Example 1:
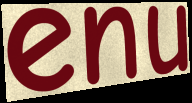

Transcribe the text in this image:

enu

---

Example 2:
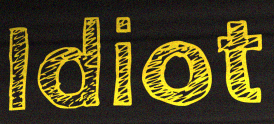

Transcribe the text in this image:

Idiot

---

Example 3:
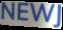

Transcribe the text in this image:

NEWJ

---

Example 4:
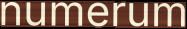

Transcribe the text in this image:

numerum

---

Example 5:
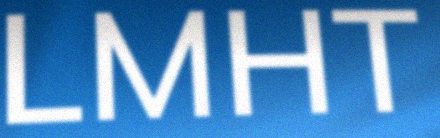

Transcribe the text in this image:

LMHT